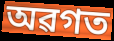
অৱগত